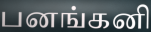
பனங்கனி